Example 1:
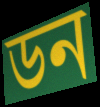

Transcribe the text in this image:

ডন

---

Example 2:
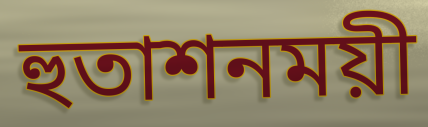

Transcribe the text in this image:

হুতাশনময়ী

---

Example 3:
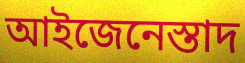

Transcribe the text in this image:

আইজেনেস্তাদ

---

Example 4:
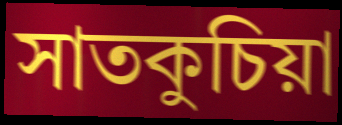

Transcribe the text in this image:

সাতকুচিয়া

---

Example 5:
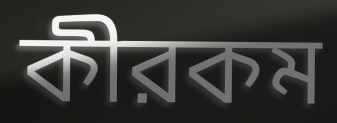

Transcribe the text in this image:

কীরকম